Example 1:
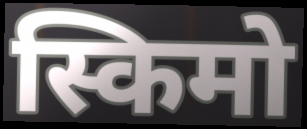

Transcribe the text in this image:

स्किमो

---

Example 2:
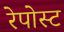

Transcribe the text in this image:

रेपोस्ट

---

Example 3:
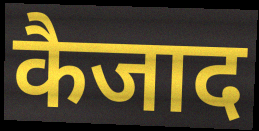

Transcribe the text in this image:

कैजाद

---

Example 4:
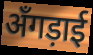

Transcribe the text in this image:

अँगड़ाई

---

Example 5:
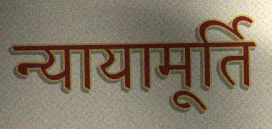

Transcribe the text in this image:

न्यायामूर्ति